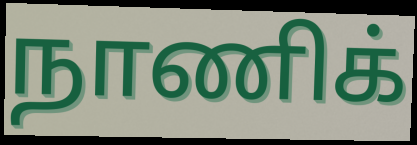
நாணிக்